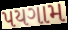
પયગામ